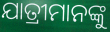
ଯାତ୍ରୀମାନଙ୍କୁ